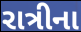
રાત્રીના